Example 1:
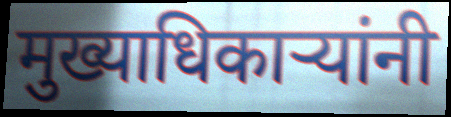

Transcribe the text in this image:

मुख्याधिकाऱ्यांनी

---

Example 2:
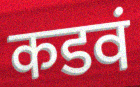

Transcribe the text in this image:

कडवं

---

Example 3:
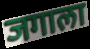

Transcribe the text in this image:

जगाला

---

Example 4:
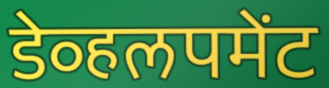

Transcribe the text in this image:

डेव्हलपमेंट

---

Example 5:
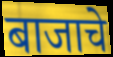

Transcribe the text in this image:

बाजाचे